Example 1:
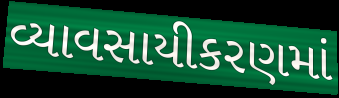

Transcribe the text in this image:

વ્યાવસાયીકરણમાં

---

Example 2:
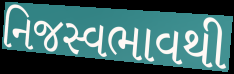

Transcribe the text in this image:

નિજસ્વભાવથી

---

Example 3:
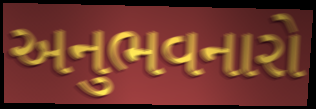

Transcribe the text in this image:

અનુભવનારો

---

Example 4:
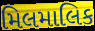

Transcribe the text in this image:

મિલમાલિક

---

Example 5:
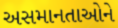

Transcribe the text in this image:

અસમાનતાઓને